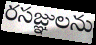
రసజ్ఞులను